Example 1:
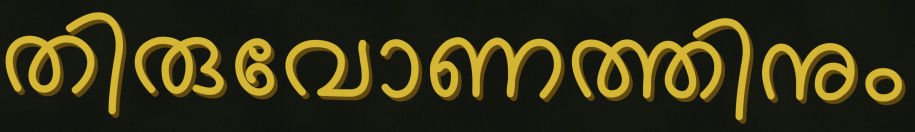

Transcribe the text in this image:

തിരുവോണത്തിനും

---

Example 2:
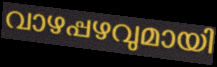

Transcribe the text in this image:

വാഴപ്പഴവുമായി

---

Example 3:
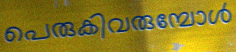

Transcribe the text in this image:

പെരുകിവരുമ്പോൾ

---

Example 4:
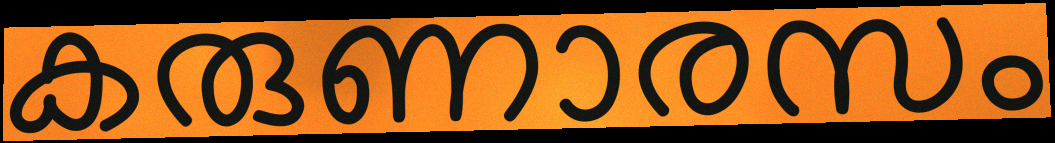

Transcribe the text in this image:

കരുണാരസം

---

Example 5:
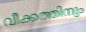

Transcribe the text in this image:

വീക്കത്തിനും